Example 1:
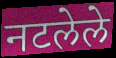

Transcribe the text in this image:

नटलेले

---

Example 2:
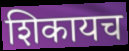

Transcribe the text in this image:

शिकायच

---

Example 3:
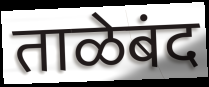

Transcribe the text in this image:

ताळेबंद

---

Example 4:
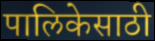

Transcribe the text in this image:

पालिकेसाठी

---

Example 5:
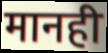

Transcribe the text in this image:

मानही